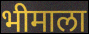
भीमाला